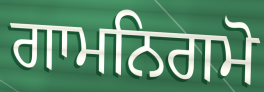
ਗਾਮਨਿਗਮੋ